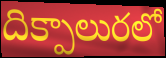
దిక్పాలురలో